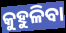
କୁହୁଳିବା